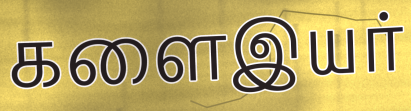
களைஇயர்